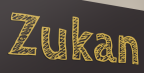
Zukan